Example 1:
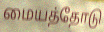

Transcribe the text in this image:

மையத்தோடு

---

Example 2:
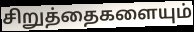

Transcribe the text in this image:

சிறுத்தைகளையும்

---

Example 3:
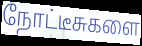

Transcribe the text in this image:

நோட்டீசுகளை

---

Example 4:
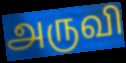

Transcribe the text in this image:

அருவி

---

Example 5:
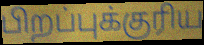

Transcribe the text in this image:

பிறப்புக்குரிய